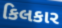
કિલકાર